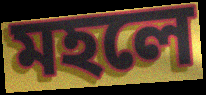
মহলে